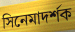
সিনেমাদর্শক